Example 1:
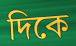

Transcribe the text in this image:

দিকে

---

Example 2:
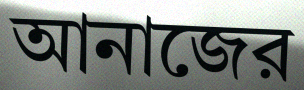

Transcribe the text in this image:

আনাজের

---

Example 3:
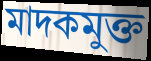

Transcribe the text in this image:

মাদকমুক্ত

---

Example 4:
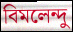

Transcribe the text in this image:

বিমলেন্দু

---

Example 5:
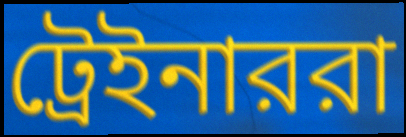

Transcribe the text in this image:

ট্রেইনাররা